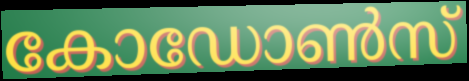
കോഡോൺസ്